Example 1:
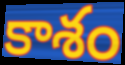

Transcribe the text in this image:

కాశం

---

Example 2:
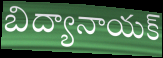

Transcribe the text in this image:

బిద్యానాయక్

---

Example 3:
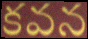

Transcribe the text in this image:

కవన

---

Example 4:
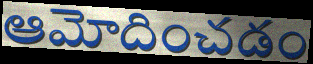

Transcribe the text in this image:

ఆమోదించడం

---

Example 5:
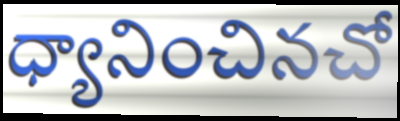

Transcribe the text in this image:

ధ్యానించినచో